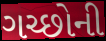
ગચ્છોની